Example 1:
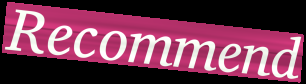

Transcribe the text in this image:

Recommend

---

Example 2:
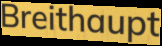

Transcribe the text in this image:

Breithaupt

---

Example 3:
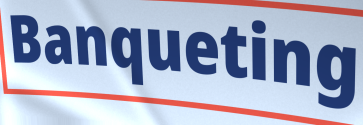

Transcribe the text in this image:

Banqueting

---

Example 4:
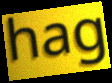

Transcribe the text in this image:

hag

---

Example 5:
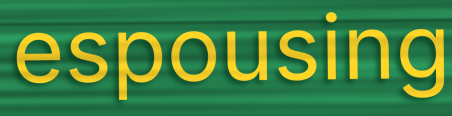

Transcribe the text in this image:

espousing